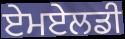
ਏਮਏਲਡੀ